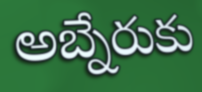
అబ్నేరుకు